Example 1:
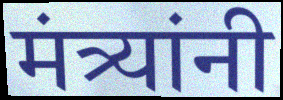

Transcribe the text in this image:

मंत्र्यांनी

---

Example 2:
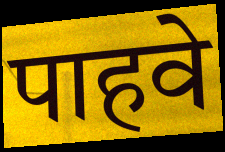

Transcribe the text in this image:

पाहवे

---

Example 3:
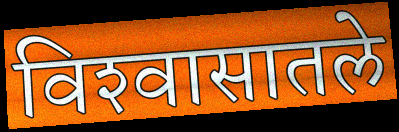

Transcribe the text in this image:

विश्वासातले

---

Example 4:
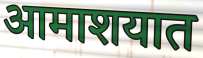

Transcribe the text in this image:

आमाशयात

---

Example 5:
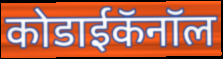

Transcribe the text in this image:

कोडाईकॅनॉल